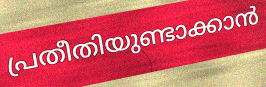
പ്രതീതിയുണ്ടാക്കാൻ